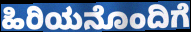
ಹಿರಿಯನೊಂದಿಗೆ